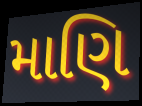
માણિ